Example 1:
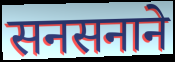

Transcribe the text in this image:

सनसनाने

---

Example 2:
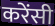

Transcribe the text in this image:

करेंसी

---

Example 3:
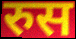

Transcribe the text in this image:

रुस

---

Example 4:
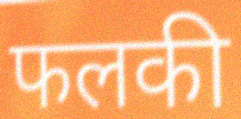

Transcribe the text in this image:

फलकी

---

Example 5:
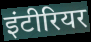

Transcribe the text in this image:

इंटीरियर